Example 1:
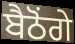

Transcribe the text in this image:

ਬੈਠੋਂਗੇ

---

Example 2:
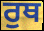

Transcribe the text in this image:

ਰੁਥ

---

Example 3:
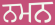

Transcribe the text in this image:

ਨਮਨ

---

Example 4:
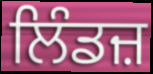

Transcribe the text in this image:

ਲਿੰਡਜ਼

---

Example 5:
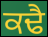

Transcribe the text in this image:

ਕਢੈ